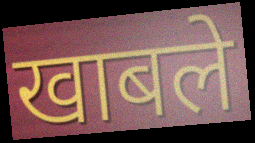
खाबले